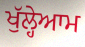
ਖੁੱਲ੍ਹੇਆਮ